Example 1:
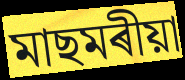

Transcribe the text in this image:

মাছমৰীয়া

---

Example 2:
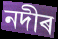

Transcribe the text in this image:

নদীৰ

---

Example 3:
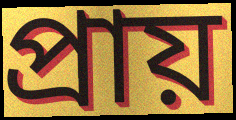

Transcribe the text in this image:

প্ৰায়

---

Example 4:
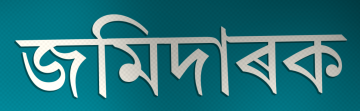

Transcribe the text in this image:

জমিদাৰক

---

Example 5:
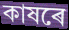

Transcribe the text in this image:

কাষৰে